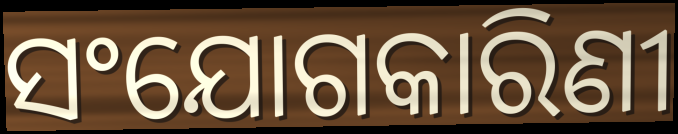
ସଂଯୋଗକାରିଣୀ